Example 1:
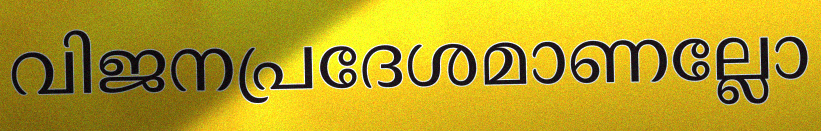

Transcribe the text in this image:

വിജനപ്രദേശമാണല്ലോ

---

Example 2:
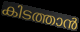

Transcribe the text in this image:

കിടത്താൻ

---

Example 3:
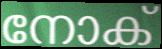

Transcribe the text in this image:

നോക്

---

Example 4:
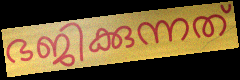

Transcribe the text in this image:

ഭജിക്കുന്നത്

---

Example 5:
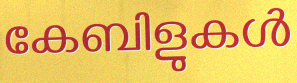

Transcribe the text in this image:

കേബിളുകൾ